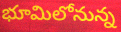
భూమిలోనున్న